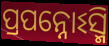
ପ୍ରପନ୍ନୋଽସ୍ମି